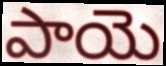
పాయె